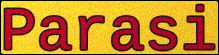
Parasi